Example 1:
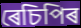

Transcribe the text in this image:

ৰেচিপিৰ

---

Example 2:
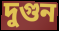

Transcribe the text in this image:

দুগুন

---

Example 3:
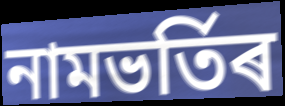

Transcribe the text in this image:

নামভৰ্তিৰ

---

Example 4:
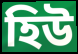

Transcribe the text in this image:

হিউ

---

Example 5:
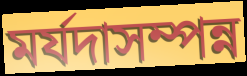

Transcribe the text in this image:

মৰ্যদাসম্পন্ন